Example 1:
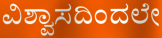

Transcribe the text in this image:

ವಿಶ್ವಾಸದಿಂದಲೇ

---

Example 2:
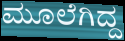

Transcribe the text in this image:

ಮೂಲೆಗಿದ್ದ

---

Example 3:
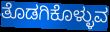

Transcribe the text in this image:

ತೊಡಗಿಕೊಳ್ಳುವ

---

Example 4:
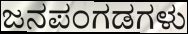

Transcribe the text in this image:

ಜನಪಂಗಡಗಳು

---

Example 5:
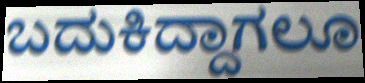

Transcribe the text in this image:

ಬದುಕಿದ್ದಾಗಲೂ